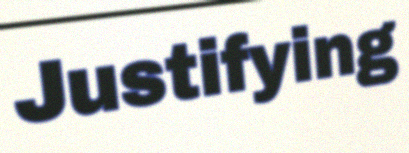
Justifying